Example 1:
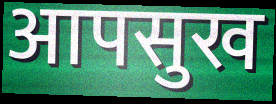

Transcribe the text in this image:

आपसुख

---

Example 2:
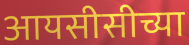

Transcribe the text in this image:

आयसीसीच्या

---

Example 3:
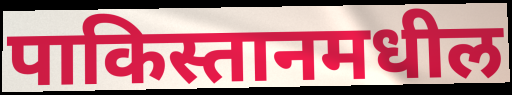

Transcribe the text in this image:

पाकिस्तानमधील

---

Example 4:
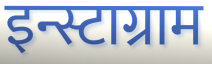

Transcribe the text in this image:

इन्स्टाग्राम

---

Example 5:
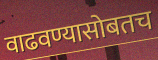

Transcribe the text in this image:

वाढवण्यासोबतच